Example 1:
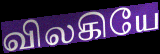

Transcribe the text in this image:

விலகியே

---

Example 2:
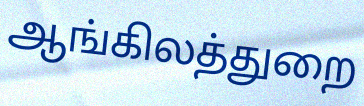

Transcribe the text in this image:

ஆங்கிலத்துறை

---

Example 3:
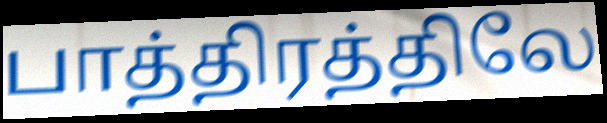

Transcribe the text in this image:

பாத்திரத்திலே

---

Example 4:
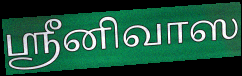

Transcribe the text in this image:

ஸ்ரீனிவாஸ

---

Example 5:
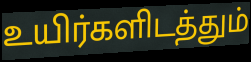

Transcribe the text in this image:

உயிர்களிடத்தும்